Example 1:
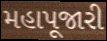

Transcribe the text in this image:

મહાપૂજારી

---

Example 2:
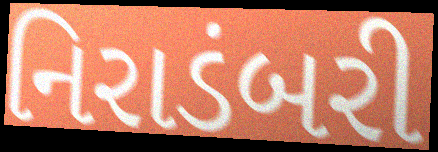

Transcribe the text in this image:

નિરાડંબરી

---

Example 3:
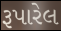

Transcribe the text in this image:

રૂપારેલ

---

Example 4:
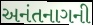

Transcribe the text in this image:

અનંતનાગની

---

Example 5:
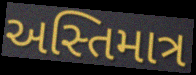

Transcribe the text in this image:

અસ્તિમાત્ર